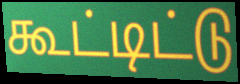
கூட்டிட்டு